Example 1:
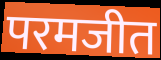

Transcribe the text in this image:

परमजीत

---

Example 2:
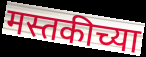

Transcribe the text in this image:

मस्तकीच्या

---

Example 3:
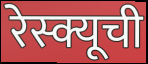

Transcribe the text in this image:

रेस्क्यूची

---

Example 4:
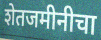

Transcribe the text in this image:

शेतजमीनीचा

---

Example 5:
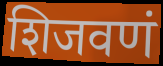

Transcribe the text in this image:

शिजवणं